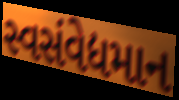
સ્વસંવેદ્યમાન